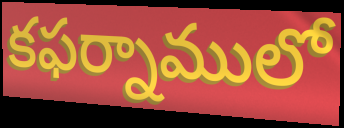
కఫర్నాములో